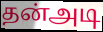
தன்அடி